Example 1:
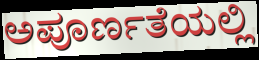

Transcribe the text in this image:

ಅಪೂರ್ಣತೆಯಲ್ಲಿ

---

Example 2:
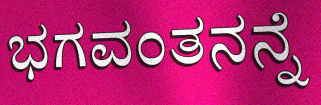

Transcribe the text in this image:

ಭಗವಂತನನ್ನೆ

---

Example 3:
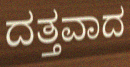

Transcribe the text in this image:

ದತ್ತವಾದ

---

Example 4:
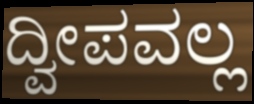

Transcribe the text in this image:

ದ್ವೀಪವಲ್ಲ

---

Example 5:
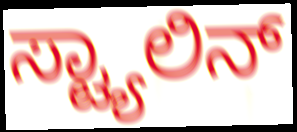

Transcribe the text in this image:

ಸ್ಟ್ಯಾಲಿನ್